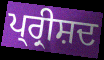
ਪ੍ਰ੍ਰੀਸ਼ਦ